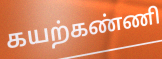
கயற்கண்ணி